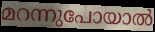
മറന്നുപോയാൽ